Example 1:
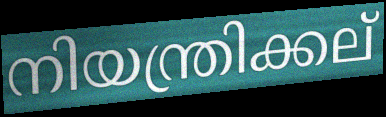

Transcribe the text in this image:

നിയന്ത്രിക്കല്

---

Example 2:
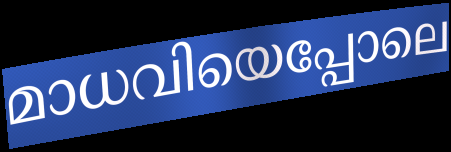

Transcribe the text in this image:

മാധവിയെപ്പോലെ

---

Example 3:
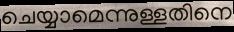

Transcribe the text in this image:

ചെയ്യാമെന്നുള്ളതിനെ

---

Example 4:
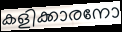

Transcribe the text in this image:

കളിക്കാരനോ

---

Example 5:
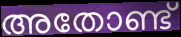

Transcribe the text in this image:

അതോണ്ട്